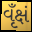
વૃઁક્ષં